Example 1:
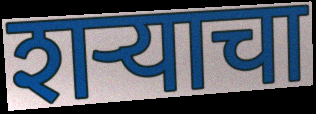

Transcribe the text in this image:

शर्‍याचा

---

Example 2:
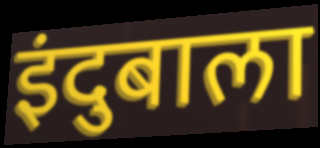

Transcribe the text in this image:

इंदुबाला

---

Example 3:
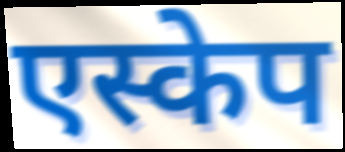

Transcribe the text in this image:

एस्केप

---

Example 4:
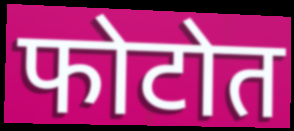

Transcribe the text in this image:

फोटोत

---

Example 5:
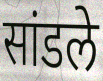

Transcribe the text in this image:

सांडले